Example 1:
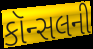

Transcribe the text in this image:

કૉન્સલની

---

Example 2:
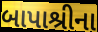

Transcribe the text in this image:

બાપાશ્રીના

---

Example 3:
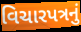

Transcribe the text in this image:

વિચારપત્રનું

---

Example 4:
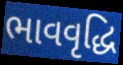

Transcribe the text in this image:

ભાવવૃદ્ધિ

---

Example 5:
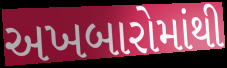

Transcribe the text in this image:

અખબારોમાંથી